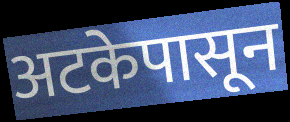
अटकेपासून